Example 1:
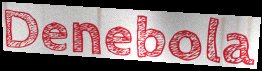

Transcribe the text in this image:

Denebola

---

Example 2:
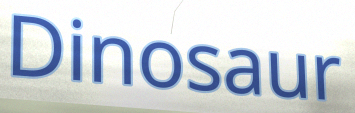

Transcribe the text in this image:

Dinosaur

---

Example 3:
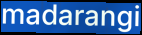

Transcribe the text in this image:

madarangi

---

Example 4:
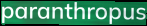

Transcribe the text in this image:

paranthropus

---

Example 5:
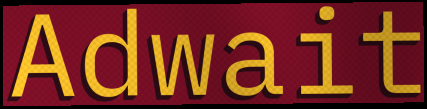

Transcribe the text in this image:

Adwait